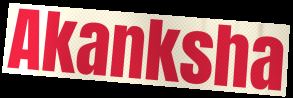
Akanksha